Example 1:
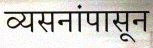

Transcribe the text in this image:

व्यसनांपासून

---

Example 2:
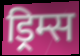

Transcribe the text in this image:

ड्रिम्स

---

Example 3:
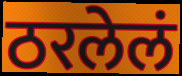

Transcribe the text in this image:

ठरलेलं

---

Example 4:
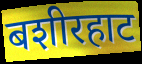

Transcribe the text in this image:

बशीरहाट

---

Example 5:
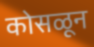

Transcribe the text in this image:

कोसळून